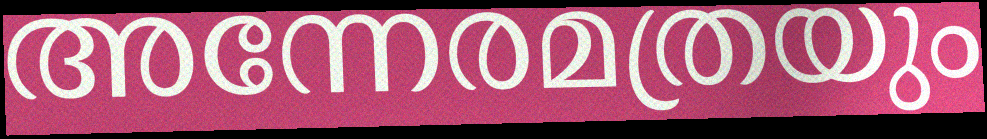
അന്നേരമത്രയും